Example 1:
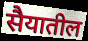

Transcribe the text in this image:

सैयातील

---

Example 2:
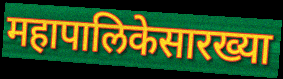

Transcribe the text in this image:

महापालिकेसारख्या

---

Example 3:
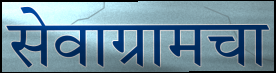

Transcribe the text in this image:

सेवाग्रामचा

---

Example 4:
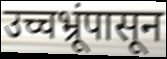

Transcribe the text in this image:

उच्चभ्रूंपासून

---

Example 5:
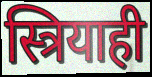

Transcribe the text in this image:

स्त्रियाही